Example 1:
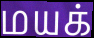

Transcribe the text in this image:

மயக்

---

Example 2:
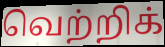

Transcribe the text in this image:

வெற்றிக்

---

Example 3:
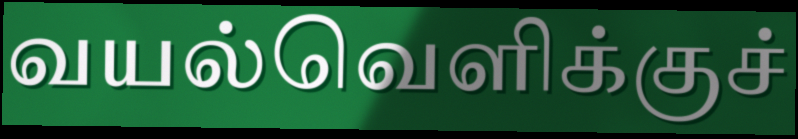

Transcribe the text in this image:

வயல்வெளிக்குச்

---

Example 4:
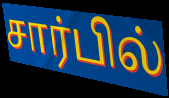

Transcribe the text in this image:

சார்பில்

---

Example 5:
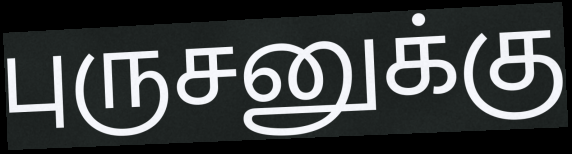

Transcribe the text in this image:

புருசனுக்கு